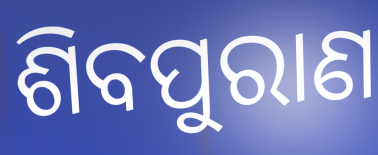
ଶିବପୁରାଣ